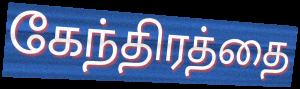
கேந்திரத்தை